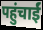
पहुंचाईं